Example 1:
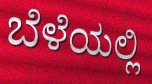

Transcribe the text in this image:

ಬೆಳೆಯಲ್ಲಿ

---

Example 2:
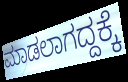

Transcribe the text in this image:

ಮಾಡಲಾಗದ್ದಕ್ಕೆ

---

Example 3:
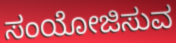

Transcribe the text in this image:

ಸಂಯೋಜಿಸುವ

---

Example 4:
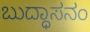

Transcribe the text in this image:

ಬುದ್ಧಾಸನಂ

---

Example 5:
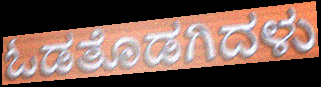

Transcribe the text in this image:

ಓಡತೊಡಗಿದಳು